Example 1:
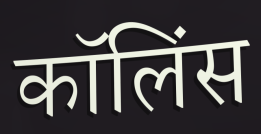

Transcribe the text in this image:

कॉलिंस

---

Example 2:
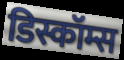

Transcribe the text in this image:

डिस्कॉम्स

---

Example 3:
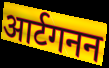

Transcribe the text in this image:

आर्टगनन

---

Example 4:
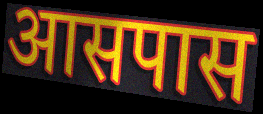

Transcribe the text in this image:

आसपास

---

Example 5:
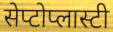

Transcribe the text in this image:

सेप्टोप्लास्टी